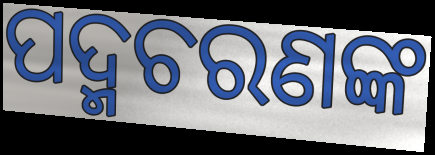
ପଦ୍ମଚରଣଙ୍କ